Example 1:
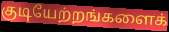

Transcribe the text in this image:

குடியேற்றங்களைக்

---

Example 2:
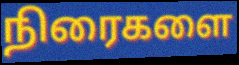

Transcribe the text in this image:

நிரைகளை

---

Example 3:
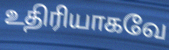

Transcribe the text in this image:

உதிரியாகவே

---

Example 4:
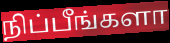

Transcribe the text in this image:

நிப்பீங்களா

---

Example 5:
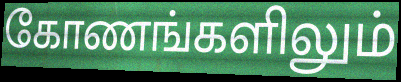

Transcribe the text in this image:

கோணங்களிலும்